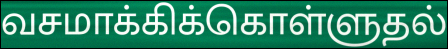
வசமாக்கிக்கொள்ளுதல்